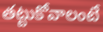
తట్టుకోవాలంటే